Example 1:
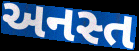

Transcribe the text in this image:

અનસ્ત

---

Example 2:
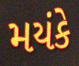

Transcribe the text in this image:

મયંકે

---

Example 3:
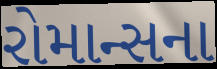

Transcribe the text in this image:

રોમાન્સના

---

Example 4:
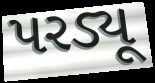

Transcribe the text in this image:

પરડ્યૂ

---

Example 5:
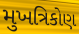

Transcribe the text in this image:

મુખત્રિકોણ